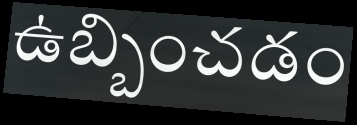
ఉబ్బించడం